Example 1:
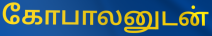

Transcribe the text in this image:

கோபாலனுடன்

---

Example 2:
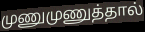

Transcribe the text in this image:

முணுமுணுத்தால்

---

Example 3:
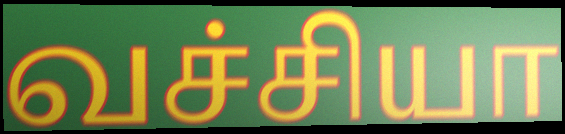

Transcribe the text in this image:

வச்சியா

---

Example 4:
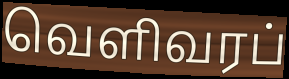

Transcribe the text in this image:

வெளிவரப்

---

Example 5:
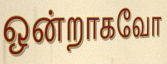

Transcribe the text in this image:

ஒன்றாகவோ